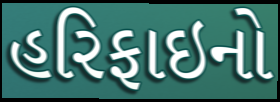
હરિફાઇનો